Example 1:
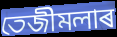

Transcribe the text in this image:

তেজীমলাৰ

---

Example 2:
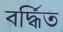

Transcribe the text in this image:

বৰ্দ্ধিত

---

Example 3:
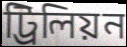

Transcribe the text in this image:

ট্ৰিলিয়ন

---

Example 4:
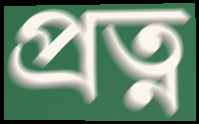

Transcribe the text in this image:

প্ৰত্ন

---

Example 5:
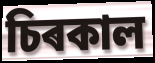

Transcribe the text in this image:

চিৰকাল